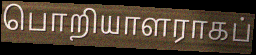
பொறியாளராகப்